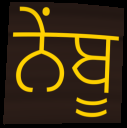
ਨੇਂਬੂ